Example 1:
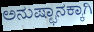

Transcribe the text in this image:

ಅನುಷ್ಟಾನಕ್ಕಾಗಿ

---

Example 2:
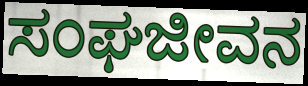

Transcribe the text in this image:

ಸಂಘಜೀವನ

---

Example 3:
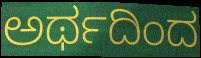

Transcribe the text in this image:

ಅರ್ಥದಿಂದ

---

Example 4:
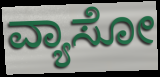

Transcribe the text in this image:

ವ್ಯಾಸೋ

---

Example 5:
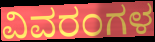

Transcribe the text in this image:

ವಿವರಂಗಳ